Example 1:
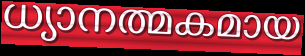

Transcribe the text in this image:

ധ്യാനത്മകമായ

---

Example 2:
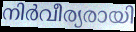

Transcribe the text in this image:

നിർവീര്യരായി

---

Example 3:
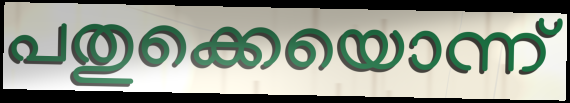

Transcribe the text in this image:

പതുക്കെയൊന്ന്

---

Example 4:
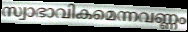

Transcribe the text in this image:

സ്വാഭാവികമെന്നവണ്ണം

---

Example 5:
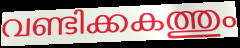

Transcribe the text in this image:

വണ്ടിക്കകത്തും